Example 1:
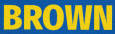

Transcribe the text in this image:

BROWN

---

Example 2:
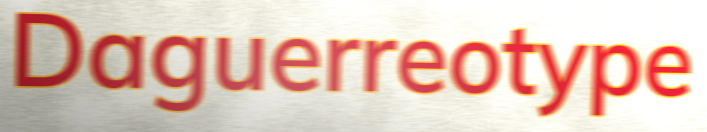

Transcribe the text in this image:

Daguerreotype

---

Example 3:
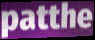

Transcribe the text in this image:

patthe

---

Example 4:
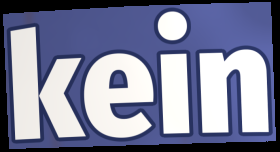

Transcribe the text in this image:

kein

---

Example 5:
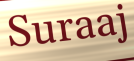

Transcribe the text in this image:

Suraaj